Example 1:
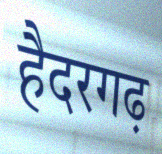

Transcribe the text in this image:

हैदरगढ़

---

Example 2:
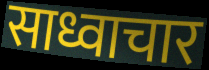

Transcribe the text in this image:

साध्वाचार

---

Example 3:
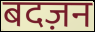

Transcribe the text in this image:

बदज़न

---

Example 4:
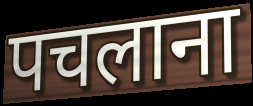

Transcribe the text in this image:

पचलाना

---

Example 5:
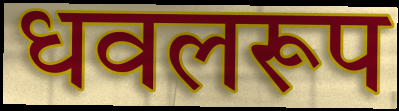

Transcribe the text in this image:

धवलरूप